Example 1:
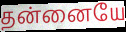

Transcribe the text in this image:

தன்னையே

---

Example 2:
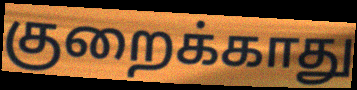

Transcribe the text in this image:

குறைக்காது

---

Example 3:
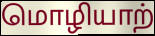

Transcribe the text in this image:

மொழியாற்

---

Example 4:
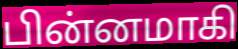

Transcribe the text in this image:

பின்னமாகி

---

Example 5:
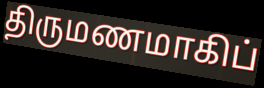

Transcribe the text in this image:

திருமணமாகிப்